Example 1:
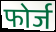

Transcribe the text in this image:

फोर्ज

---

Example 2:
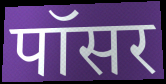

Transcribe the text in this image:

पॉसर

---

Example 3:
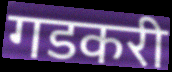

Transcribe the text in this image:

गडकरी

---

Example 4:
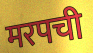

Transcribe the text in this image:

मरपची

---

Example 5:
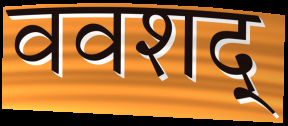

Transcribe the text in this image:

ववशद्